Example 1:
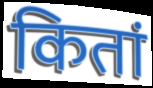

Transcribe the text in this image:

कितां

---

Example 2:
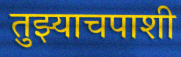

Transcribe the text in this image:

तुझ्याचपाशी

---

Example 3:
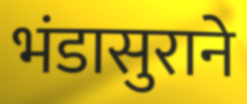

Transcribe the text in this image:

भंडासुराने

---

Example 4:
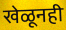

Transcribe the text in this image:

खेळूनही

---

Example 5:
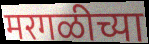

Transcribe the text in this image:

मरगळीच्या